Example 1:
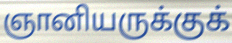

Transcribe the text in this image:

ஞானியருக்குக்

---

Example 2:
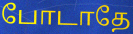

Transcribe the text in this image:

போடாதே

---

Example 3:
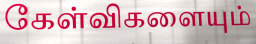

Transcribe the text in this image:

கேள்விகளையும்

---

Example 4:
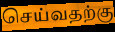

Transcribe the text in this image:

செய்வதற்கு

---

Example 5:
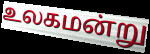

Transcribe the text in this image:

உலகமன்று